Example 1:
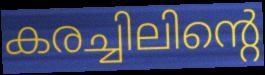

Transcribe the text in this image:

കരച്ചിലിന്റെ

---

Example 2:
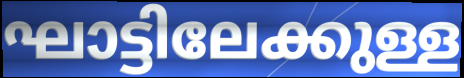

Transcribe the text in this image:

ഘാട്ടിലേക്കുള്ള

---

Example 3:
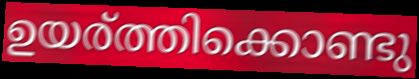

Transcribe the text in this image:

ഉയര്ത്തിക്കൊണ്ടു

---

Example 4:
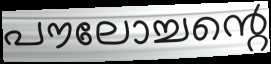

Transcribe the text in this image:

പൗലോച്ചന്റെ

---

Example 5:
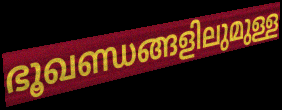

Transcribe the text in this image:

ഭൂഖണ്ഡങ്ങളിലുമുള്ള